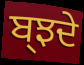
ਬ੍ਝਦੇ